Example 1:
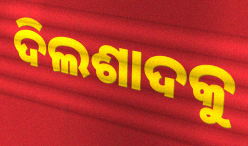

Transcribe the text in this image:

ଦିଲଶାଦକୁ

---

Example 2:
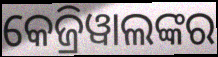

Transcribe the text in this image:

କେଜ୍ରିୱାଲଙ୍କର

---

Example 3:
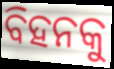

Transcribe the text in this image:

ବିହନକୁ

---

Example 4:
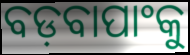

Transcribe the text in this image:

ବଡ଼ବାପାଂକୁ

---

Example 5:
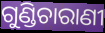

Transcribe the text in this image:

ଗୁଣ୍ଡିଚାରାଣୀ